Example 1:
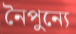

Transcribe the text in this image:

নৈপুন্যে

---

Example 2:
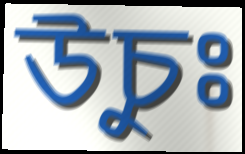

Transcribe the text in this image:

উচুঃ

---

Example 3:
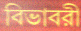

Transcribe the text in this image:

বিভাবরী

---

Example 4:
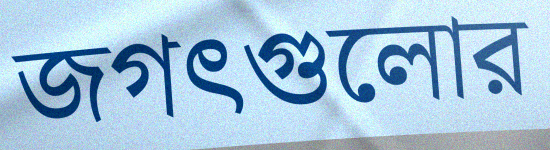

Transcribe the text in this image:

জগৎগুলোর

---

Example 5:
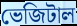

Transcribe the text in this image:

ভেজিটাল